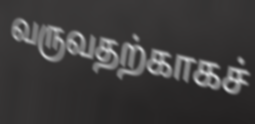
வருவதற்காகச்